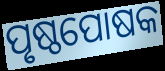
ପୃଷ୍ଠପୋଷକ